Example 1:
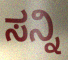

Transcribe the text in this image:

ಸನ್ನಿ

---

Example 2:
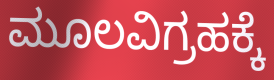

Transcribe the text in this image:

ಮೂಲವಿಗ್ರಹಕ್ಕೆ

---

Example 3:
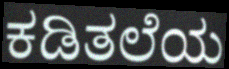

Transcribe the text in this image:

ಕಡಿತಲೆಯ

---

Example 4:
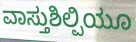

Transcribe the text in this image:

ವಾಸ್ತುಶಿಲ್ಪಿಯೂ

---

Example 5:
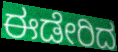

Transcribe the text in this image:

ಈಡೇರಿದ